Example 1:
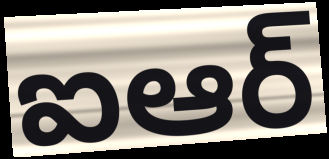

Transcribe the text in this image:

ఐఆర్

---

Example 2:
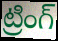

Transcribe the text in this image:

ట్రింగ్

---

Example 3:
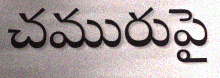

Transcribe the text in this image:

చమురుపై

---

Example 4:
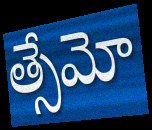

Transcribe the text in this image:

త్సేమో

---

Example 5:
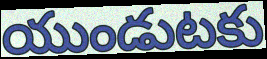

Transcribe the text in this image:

యుండుటకు